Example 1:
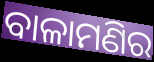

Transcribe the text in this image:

ବାଳାମଣିର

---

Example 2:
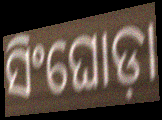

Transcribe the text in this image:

ସିଂଘୋଡ଼ା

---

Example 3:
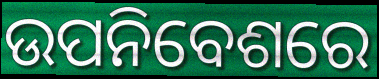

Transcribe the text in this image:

ଉପନିବେଶରେ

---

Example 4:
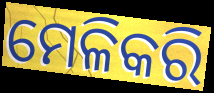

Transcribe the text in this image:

ମେଳିକରି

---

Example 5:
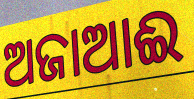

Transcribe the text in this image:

ଅଜାଆଈ